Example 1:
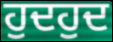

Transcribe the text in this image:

ਹੁਦਹੁਦ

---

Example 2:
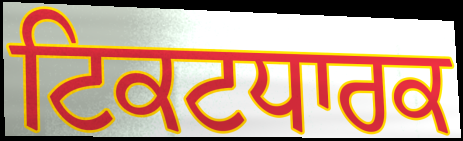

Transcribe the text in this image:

ਟਿਕਟਧਾਰਕ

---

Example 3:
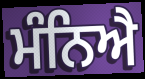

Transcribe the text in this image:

ਮੰਨਿਐ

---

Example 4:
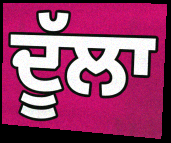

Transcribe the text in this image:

ਦੂੱਲਾ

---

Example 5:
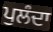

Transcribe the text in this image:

ਪੁਲੰਦਾ